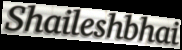
Shaileshbhai